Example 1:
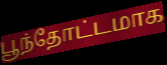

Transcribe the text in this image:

பூந்தோட்டமாக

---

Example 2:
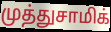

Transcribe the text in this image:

முத்துசாமிக்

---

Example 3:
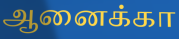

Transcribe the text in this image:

ஆனைக்கா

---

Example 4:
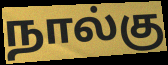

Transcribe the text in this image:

நால்கு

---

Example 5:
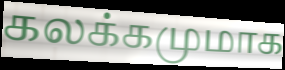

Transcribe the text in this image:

கலக்கமுமாக